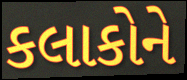
કલાકોને